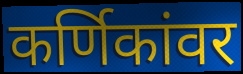
कर्णिकांवर